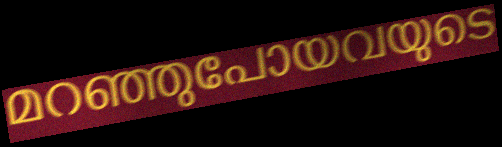
മറഞ്ഞുപോയവയുടെ